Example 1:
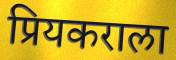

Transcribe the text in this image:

प्रियकराला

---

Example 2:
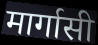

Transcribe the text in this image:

मार्गासी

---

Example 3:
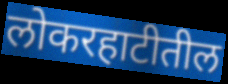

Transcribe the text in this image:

लोकरहाटीतील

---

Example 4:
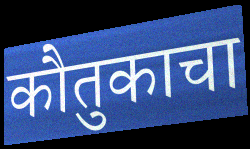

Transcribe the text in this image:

कौतुकाचा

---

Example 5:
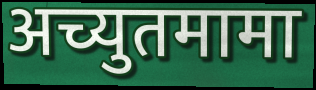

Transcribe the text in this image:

अच्युतमामा